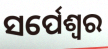
ସର୍ପେଶ୍ୱର